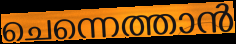
ചെന്നെത്താൻ